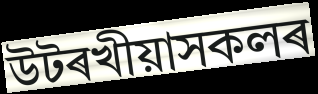
উটৰখীয়াসকলৰ